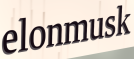
elonmusk